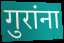
गुरांना